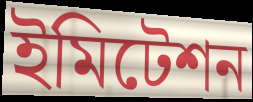
ইমিটেশন